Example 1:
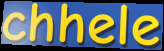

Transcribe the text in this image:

chhele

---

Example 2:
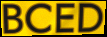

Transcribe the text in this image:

BCED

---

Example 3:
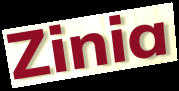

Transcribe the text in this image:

Zinia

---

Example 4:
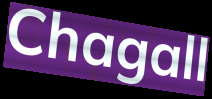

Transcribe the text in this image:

Chagall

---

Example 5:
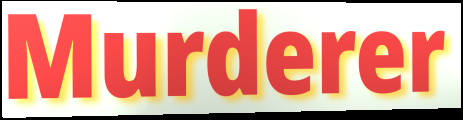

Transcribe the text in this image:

Murderer